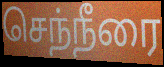
செந்நீரை